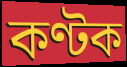
কণ্টক